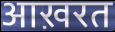
आख़रत